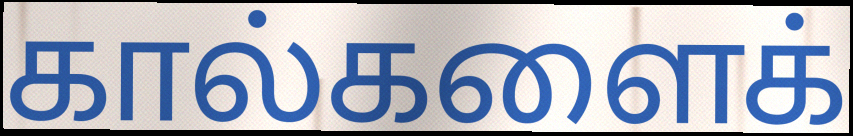
கால்களைக்